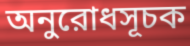
অনুরোধসূচক